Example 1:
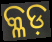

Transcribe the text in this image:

କ୍ଳଡ଼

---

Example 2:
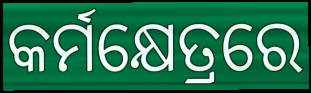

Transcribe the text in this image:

କର୍ମକ୍ଷେତ୍ରରେ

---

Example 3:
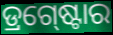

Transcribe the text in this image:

ଡ୍ରଗ୍‍ଷ୍ଟୋର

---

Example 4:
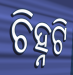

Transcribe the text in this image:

ଚିହ୍ନଟି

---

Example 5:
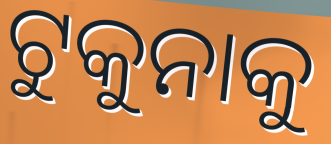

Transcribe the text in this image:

ଟୁକୁନାକୁ